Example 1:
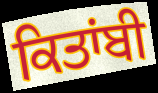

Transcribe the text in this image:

ਕਿਤਾਂਬੀ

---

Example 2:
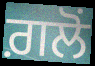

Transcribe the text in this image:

ਗ਼ਲੋਂ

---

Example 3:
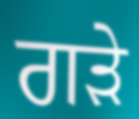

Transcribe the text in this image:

ਗੜੇ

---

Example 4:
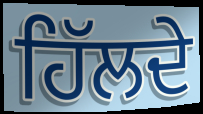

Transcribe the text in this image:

ਹਿੱਲਦੇ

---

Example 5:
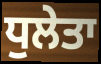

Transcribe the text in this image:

ਧੁਲੇਤਾ